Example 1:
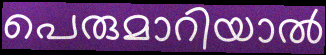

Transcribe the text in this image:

പെരുമാറിയാൽ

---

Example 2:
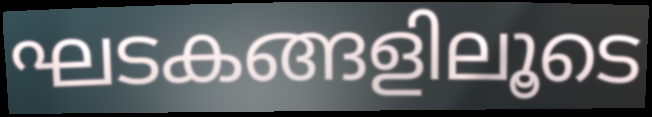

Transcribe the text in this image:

ഘടകങ്ങളിലൂടെ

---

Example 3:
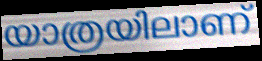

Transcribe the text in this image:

യാത്രയിലാണ്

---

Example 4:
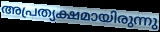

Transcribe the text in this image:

അപ്രത്യക്ഷമായിരുന്നു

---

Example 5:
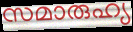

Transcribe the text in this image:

സമാരുഹ്യ